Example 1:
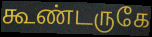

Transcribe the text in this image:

கூண்டருகே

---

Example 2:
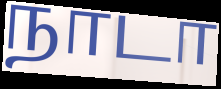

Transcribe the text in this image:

நாடா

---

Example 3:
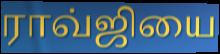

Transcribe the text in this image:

ராவ்ஜியை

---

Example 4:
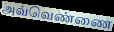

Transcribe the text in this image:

அவ்வெண்ணை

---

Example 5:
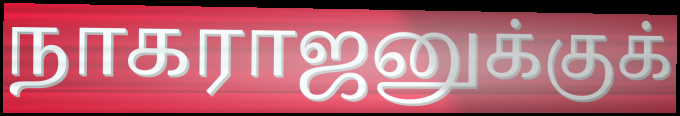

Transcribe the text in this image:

நாகராஜனுக்குக்